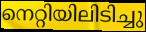
നെറ്റിയിലിടിച്ചു